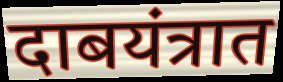
दाबयंत्रात